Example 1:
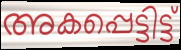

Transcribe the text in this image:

അകപ്പെട്ടിട്ട്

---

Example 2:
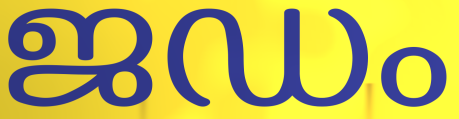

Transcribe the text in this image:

ജഡം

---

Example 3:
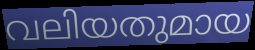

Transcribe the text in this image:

വലിയതുമായ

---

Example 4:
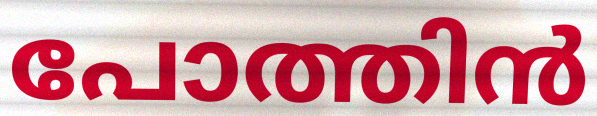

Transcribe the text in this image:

പോത്തിൻ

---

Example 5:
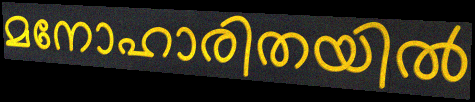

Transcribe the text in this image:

മനോഹാരിതയിൽ